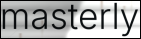
masterly